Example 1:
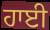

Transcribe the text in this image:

ਹਾਈ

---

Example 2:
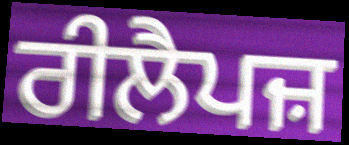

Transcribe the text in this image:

ਰੀਲੈਪਜ਼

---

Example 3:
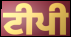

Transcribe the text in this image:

ਟੀਪੀ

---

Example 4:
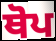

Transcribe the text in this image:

ਥੋਪ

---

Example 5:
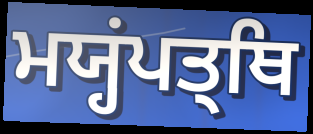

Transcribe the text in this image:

ਮਯ੍ਹਂਪਤ੍ਥਿ